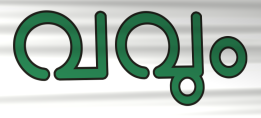
വവും